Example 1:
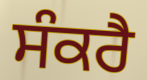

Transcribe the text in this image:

ਸੰਕਰੈ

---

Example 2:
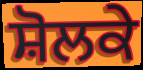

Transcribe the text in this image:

ਸ਼ੋਲਕੇ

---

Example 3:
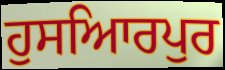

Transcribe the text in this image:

ਹੁਸਆਿਰਪੁਰ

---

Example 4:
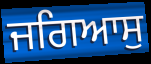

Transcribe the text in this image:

ਜਗਿਆਸੁ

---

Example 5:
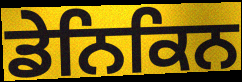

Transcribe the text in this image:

ਡੇਨਿਕਿਨ